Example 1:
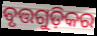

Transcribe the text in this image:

ବୃତ୍ତଗୁଡ଼ିକର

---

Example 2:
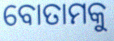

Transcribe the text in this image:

ବୋତାମକୁ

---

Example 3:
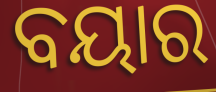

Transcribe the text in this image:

ବୟାର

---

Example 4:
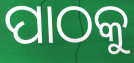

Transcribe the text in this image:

ପାଠକୁ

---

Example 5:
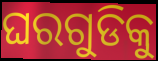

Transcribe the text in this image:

ଘରଗୁଡିକୁ